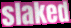
slaked